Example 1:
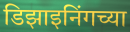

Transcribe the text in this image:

डिझाइनिंगच्या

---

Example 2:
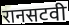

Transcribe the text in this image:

रानसटवी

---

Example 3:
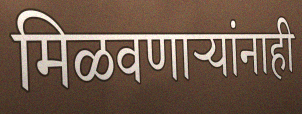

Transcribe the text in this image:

मिळवणाऱ्यांनाही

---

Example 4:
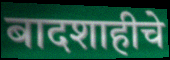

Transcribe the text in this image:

बादशाहीचे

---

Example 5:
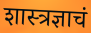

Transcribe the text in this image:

शास्त्रज्ञाचं